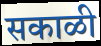
सकाळी